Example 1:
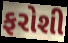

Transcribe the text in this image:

ફરોશી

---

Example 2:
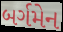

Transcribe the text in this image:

બર્ગમેન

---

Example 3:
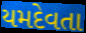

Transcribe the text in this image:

યમદેવતા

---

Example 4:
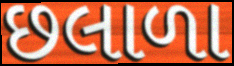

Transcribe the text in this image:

છલાળા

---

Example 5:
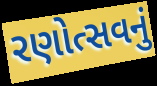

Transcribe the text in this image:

રણોત્સવનું